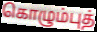
கொழும்புத்